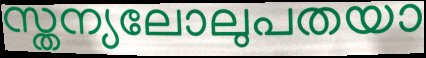
സ്തന്യലോലുപതയാ